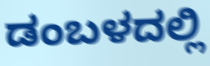
ಡಂಬಳದಲ್ಲಿ